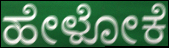
ಹೇಳೋಕೆ